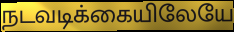
நடவடிக்கையிலேயே